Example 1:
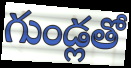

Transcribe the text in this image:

గుండ్లతో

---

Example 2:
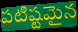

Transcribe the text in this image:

పటిష్టమైన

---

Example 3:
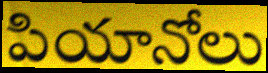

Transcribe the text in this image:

పియానోలు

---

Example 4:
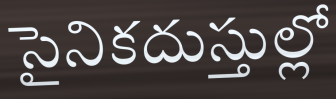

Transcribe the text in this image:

సైనికదుస్తుల్లో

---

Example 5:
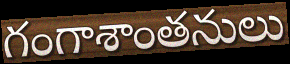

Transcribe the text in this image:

గంగాశాంతనులు